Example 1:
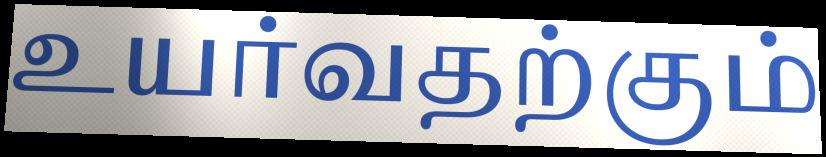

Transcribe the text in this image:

உயர்வதற்கும்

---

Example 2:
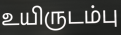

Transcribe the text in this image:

உயிருடம்பு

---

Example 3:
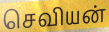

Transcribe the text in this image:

செவியன்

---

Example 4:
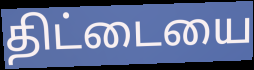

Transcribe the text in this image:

திட்டையை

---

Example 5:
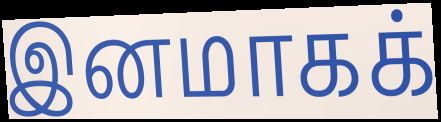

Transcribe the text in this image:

இனமாகக்